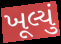
ખૂલ્યું